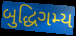
બુદ્ધિગમ્ય